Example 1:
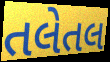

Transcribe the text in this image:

તલેતલ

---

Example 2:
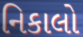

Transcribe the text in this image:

નિકાલો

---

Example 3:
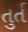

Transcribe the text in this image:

તુર્ત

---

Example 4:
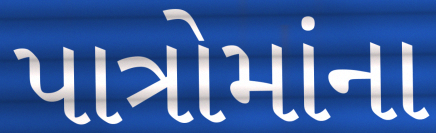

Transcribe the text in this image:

પાત્રોમાંના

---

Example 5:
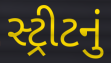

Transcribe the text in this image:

સ્ટ્રીટનું